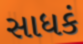
સાધકં